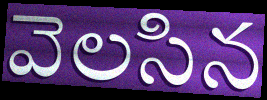
వెలసిన